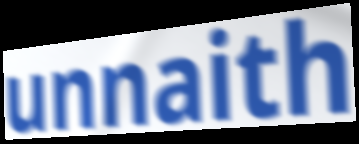
unnaith